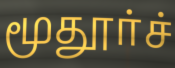
மூதூர்ச்